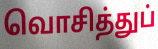
வொசித்துப்